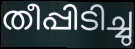
തീപ്പിടിച്ചു